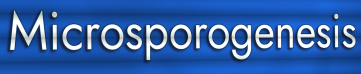
Microsporogenesis